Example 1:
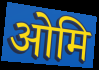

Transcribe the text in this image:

ओमि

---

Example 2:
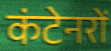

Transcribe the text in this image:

कंटेनरों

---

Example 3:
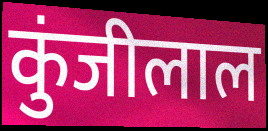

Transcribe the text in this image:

कुंजीलाल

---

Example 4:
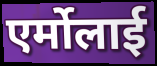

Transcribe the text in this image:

एर्मोलाई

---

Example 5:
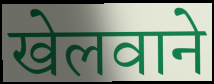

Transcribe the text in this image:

खेलवाने